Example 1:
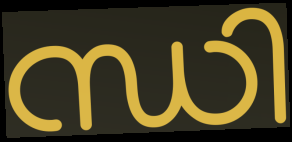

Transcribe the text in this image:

ന്ധി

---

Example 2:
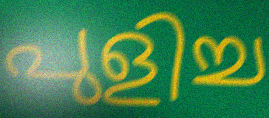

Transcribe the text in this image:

പുളിച്ച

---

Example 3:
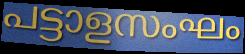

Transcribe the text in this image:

പട്ടാളസംഘം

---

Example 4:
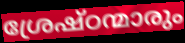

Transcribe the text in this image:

ശ്രേഷ്ഠന്മാരും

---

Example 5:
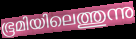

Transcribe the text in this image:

ഭൂമിയിലെത്തുന്നു